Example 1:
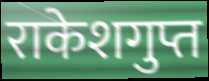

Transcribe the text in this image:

राकेशगुप्त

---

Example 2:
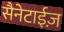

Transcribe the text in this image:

सैनेटाईज़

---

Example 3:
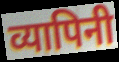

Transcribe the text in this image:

व्यापिनी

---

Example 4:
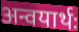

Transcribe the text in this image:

अन्वयार्थः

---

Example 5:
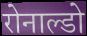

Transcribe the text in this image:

रोनाल्डो